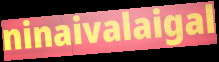
ninaivalaigal